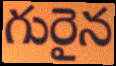
గురైన